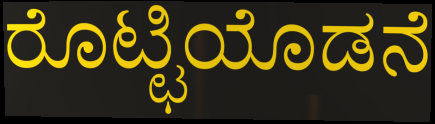
ರೊಟ್ಟಿಯೊಡನೆ